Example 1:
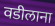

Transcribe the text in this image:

वडीलाना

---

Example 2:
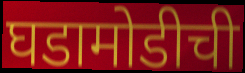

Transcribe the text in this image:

घडामोडीची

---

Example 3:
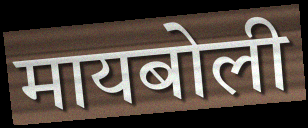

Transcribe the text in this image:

मायबोली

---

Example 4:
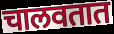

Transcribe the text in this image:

चालवतात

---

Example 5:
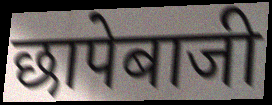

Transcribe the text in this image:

छापेबाजी